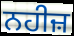
ਨਹੀਜ਼